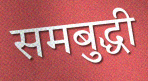
समबुद्धी